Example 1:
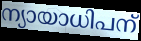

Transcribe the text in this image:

ന്യായാധിപന്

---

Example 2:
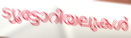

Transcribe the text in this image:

ട്യൂട്ടോറിയലുകൾ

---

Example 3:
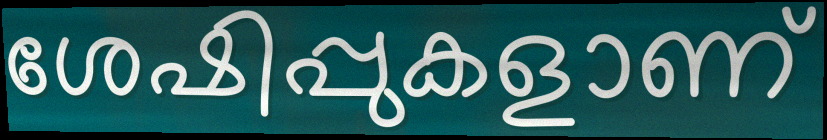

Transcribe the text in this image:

ശേഷിപ്പുകളാണ്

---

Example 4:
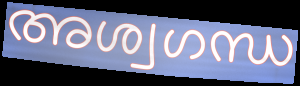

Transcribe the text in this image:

അശ്വഗന്ധ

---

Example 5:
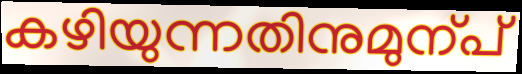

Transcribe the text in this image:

കഴിയുന്നതിനുമുന്പ്